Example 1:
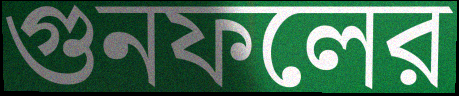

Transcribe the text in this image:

গুনফলের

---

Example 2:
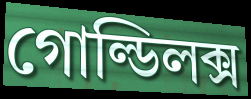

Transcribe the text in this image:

গোল্ডিলক্স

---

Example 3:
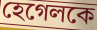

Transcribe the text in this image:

হেগেলকে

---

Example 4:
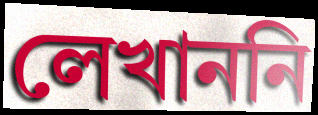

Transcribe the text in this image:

লেখাননি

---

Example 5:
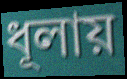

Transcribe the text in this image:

ধূলায়